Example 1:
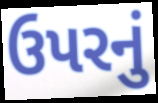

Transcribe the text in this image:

ઉપરનું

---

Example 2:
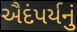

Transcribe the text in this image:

ઐદંપર્યનું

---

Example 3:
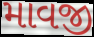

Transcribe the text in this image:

માવજી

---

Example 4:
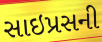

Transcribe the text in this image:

સાઇપ્રસની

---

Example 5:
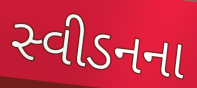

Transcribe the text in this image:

સ્વીડનના